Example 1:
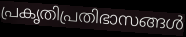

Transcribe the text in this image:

പ്രകൃതിപ്രതിഭാസങ്ങൾ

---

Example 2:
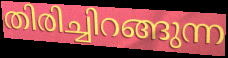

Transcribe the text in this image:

തിരിച്ചിറങ്ങുന്ന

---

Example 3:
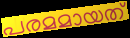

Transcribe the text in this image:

പരമമായത്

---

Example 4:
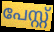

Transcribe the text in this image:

പേസ്റ്റ്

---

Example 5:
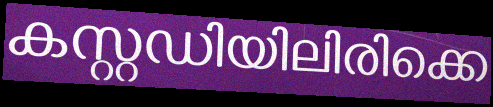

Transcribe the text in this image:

കസ്റ്റഡിയിലിരിക്കെ